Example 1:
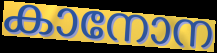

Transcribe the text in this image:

കാനോന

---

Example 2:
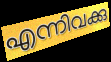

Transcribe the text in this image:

എന്നിവക്കു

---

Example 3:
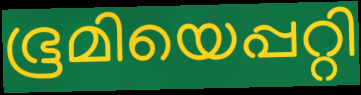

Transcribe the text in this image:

ഭൂമിയെപ്പറ്റി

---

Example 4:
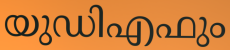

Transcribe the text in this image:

യുഡിഎഫും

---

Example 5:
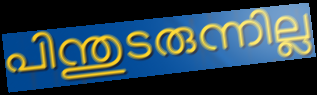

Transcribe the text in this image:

പിന്തുടരുന്നില്ല